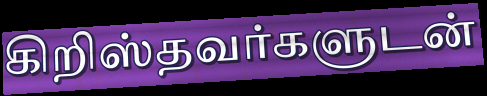
கிறிஸ்தவர்களுடன்